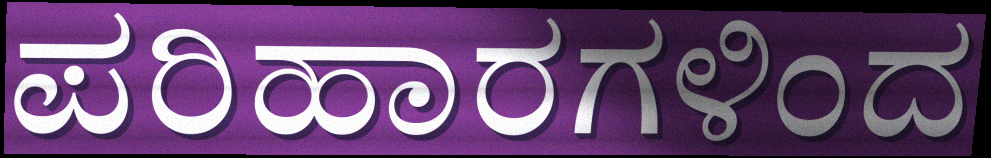
ಪರಿಹಾರಗಳಿಂದ